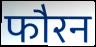
फौरन